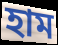
হাম